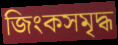
জিংকসমৃদ্ধ